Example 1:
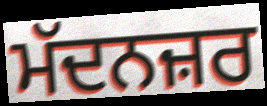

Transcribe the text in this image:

ਮੱਦਨਜ਼ਰ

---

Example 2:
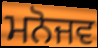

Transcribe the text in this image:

ਮਨੋਜਵ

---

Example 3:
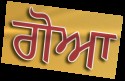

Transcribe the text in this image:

ਗੋਆ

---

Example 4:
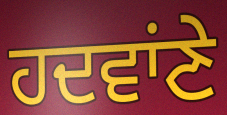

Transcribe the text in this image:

ਹਦਵਾਂਣੇ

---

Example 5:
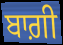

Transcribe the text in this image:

ਬਾਗ਼ੀ